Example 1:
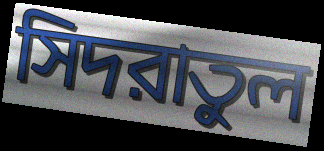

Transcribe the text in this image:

সিদরাতুল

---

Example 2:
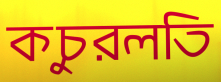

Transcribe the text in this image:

কচুরলতি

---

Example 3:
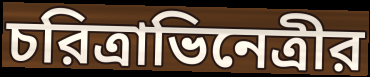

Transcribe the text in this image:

চরিত্রাভিনেত্রীর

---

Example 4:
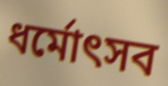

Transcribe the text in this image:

ধর্মোৎসব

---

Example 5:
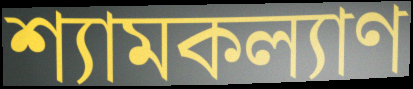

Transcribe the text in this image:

শ্যামকল্যাণ